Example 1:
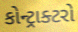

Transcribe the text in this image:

કોન્ટ્રાક્ટરો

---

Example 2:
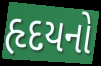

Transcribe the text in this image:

હૃદયનો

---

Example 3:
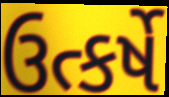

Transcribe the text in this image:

ઉત્કર્ષે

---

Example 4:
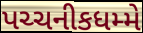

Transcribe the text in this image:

પચ્ચનીકધમ્મે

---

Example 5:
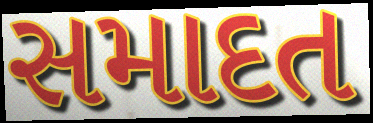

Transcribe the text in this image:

સમાદત